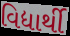
વિદ્યાર્થી